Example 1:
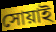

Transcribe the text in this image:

সোয়াই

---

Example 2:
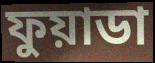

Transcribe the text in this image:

ফুয়াডা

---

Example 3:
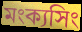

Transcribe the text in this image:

মংক্যসিং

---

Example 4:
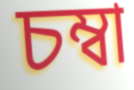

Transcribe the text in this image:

চম্বা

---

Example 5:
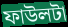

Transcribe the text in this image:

ফাউলটা